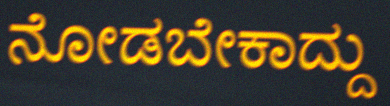
ನೋಡಬೇಕಾದ್ದು